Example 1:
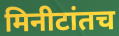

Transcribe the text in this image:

मिनीटांतच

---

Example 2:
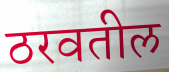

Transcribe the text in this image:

ठरवतील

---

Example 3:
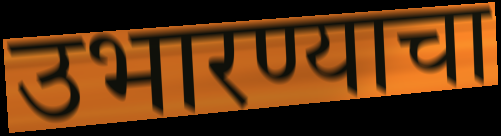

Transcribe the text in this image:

उभारण्याचा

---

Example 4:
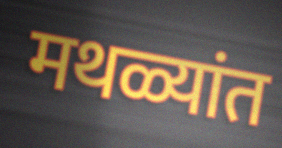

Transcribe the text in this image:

मथळ्यांत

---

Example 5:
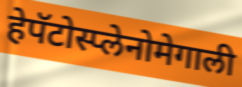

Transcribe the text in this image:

हेपॅटोस्प्लेनोमेगाली